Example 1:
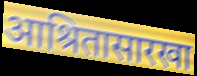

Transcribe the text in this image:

आश्रितासारखा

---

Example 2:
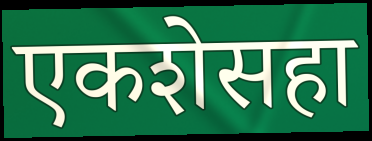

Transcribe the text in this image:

एकशेसहा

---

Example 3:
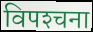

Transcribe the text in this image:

विपश्चना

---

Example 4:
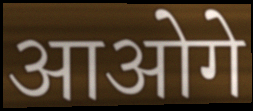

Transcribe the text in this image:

आओगे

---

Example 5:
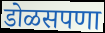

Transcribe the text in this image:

डोळसपणा